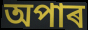
অপাৰ